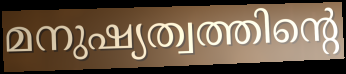
മനുഷ്യത്വത്തിന്റെ